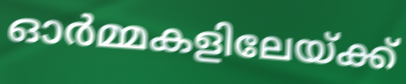
ഓർമ്മകളിലേയ്ക്ക്